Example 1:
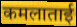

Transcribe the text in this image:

कमलाताई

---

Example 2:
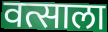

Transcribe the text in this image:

वत्साला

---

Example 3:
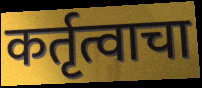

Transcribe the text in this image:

कर्तृत्वाचा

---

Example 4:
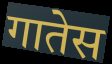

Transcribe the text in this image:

गातेस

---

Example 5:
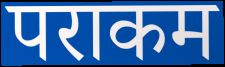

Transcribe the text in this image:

पराकम